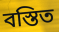
বস্তিত